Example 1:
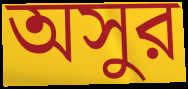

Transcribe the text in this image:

অসুর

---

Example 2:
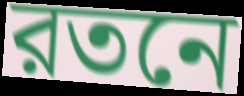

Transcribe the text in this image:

রতনে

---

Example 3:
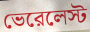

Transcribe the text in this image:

ভেরেলেস্ট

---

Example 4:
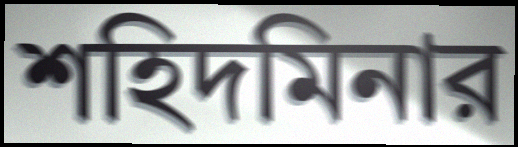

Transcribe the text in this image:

শহিদমিনার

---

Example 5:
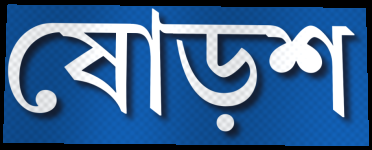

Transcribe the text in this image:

ষোড়শ